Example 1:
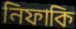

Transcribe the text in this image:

নিফাকি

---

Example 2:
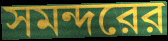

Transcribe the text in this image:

সমন্দরের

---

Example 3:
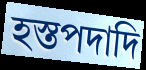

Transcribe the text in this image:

হস্তপদাদি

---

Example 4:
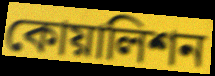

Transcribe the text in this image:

কোয়ালিশন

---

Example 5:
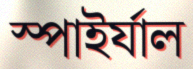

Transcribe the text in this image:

স্পাইর্যাল